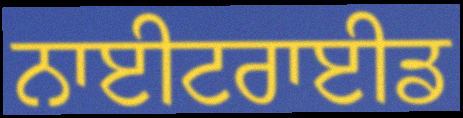
ਨਾਈਟਰਾਈਡ